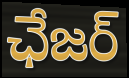
ఛేజర్